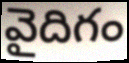
వైదిగం